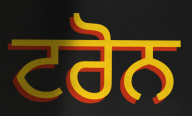
ਟਰੋਨ